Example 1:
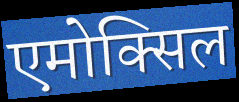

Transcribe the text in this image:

एमोक्सिल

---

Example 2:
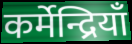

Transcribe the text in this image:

कर्मेन्द्रियाँ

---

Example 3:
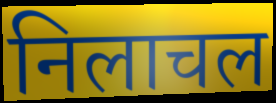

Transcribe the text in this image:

निलाचल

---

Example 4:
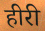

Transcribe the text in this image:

हीरी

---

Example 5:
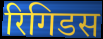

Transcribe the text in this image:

रिगिडस